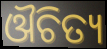
ଔଚିତ୍ଯ